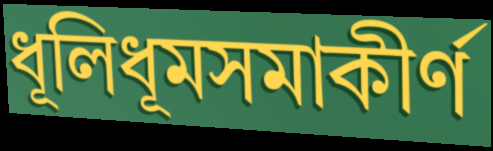
ধূলিধূমসমাকীর্ণ